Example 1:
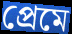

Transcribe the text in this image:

প্ৰেমে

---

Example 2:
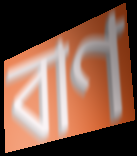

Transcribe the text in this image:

বাণ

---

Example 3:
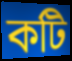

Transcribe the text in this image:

কটি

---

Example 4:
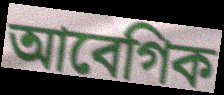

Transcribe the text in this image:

আবেগিক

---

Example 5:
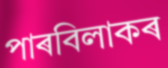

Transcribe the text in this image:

পাৰবিলাকৰ